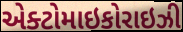
એક્ટોમાઇકોરાઇઝી